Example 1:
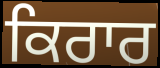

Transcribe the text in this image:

ਕਿਰਾਰ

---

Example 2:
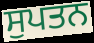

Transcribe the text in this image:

ਸੁਪਤਨ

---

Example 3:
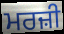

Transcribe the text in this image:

ਮਰਜ਼ੀ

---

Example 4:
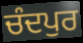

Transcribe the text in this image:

ਚੰਦਪੁਰ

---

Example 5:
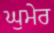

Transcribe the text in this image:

ਘੁਮੇਰ